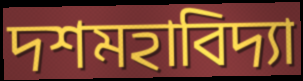
দশমহাবিদ্যা